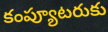
కంప్యూటరుకు